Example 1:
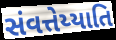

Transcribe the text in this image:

સંવત્તેય્યાતિ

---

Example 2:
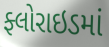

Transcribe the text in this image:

ફ્લોરાઇડમાં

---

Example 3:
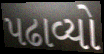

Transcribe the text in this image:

પઢાવ્યો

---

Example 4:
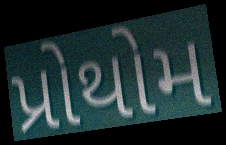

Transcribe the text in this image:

પ્રોથોમ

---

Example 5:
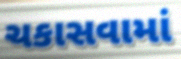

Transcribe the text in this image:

ચકાસવામાં